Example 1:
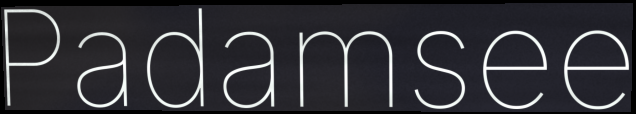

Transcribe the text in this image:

Padamsee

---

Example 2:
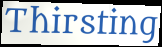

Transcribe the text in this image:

Thirsting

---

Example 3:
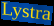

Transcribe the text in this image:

Lystra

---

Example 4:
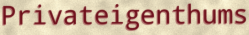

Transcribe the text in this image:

Privateigenthums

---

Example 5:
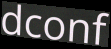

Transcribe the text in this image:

dconf